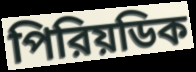
পিরিয়ডিক